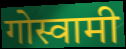
गोस्वामी